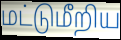
மட்டுமீறிய